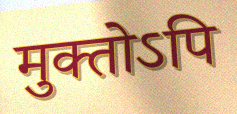
मुक्तोऽपि